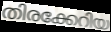
തിരക്കേറിയ